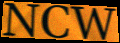
NCW